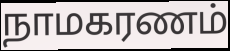
நாமகரணம்